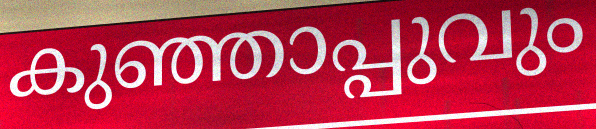
കുഞ്ഞാപ്പുവും